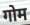
गोम